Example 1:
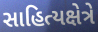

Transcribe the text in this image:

સાહિત્યક્ષેત્રે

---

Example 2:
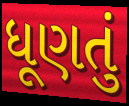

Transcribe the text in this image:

ધૂણતું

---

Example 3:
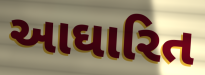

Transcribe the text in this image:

આઘારિત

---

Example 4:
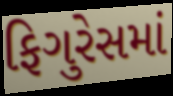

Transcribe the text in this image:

ફિગુરેસમાં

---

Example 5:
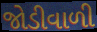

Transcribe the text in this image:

જોડીવાળી